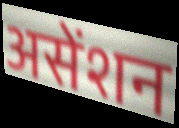
असेंशन